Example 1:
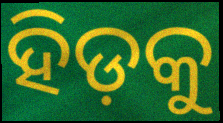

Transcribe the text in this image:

ହିଡ଼କୁ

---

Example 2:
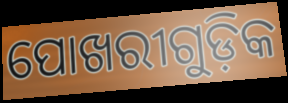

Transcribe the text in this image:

ପୋଖରୀଗୁଡ଼ିକ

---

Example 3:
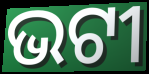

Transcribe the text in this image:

ଭଟୀ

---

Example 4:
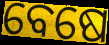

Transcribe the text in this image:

ବେଷେ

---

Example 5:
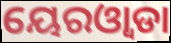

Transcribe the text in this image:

ୟେରଓ୍ୱାଡା